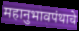
महानुभावपंथाचे